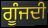
ਗੂੰਜਦੀ